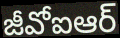
జీవోఐఆర్